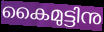
കൈമുട്ടിനു